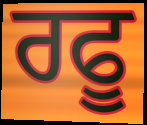
ਰਫੂ